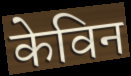
केविन